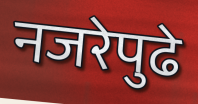
नजरेपुढे